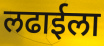
लढाईला